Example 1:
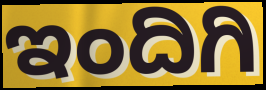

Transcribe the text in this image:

ಇಂದಿಗಿ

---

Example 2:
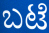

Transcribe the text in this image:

ಬಟೆ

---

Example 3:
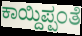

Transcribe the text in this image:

ಕಾಯ್ದಿಪ್ಪಂತೆ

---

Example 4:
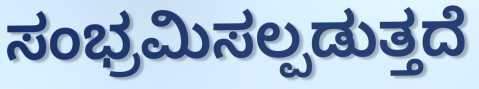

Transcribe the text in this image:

ಸಂಭ್ರಮಿಸಲ್ಪಡುತ್ತದೆ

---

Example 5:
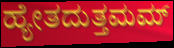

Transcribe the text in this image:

ಹ್ಯೇತದುತ್ತಮಮ್